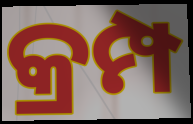
କ୍ରମ୍ପ